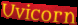
Uvicorn